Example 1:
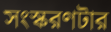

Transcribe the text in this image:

সংস্করণটার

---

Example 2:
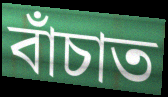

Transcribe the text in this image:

বাঁচাত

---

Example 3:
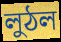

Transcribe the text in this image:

লুঠল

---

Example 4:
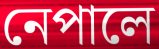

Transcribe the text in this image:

নেপালে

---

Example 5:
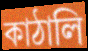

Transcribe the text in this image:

কাঠালি